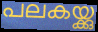
പലകയ്ക്കു